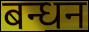
बन्धन